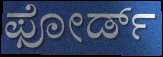
ಫೋರ್ಡ್